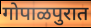
गोपाळपुरात